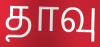
தாவு